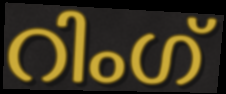
റിംഗ്